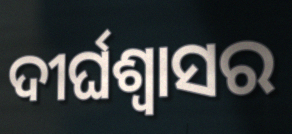
ଦୀର୍ଘଶ୍ବାସର